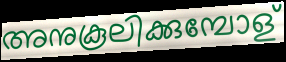
അനുകൂലിക്കുമ്പോള്